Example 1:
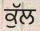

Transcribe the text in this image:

ਕੁੱਲ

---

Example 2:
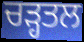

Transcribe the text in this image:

ਚੜ੍ਹਤਲ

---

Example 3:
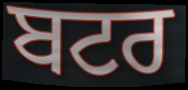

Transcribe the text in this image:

ਬਟਰ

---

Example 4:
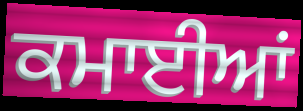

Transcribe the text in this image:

ਕਮਾਈਆਂ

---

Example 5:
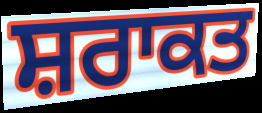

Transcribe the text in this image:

ਸ਼ਰਾਕਤ